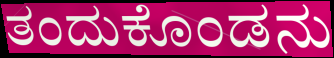
ತಂದುಕೊಂಡನು